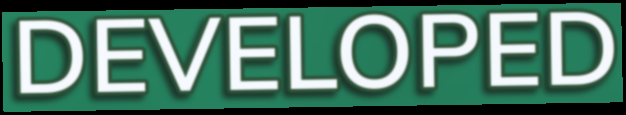
DEVELOPED